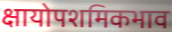
क्षायोपशमिकभाव